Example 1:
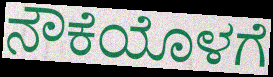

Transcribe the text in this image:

ನೌಕೆಯೊಳಗೆ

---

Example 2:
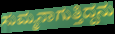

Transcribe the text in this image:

ಸುಮ್ಮನಾಗುತ್ತಿದ್ದನು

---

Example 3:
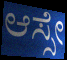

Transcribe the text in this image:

ಆಸ್ಸೇ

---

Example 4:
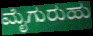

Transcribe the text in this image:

ಮೈಗುರುಹು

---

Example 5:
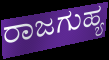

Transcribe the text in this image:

ರಾಜಗುಹ್ಯ